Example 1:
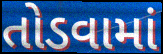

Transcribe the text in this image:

તોડવામાં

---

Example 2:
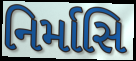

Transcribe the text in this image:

નિર્માસિ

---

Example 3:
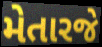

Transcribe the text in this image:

મેતારજે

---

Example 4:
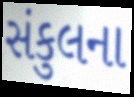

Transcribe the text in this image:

સંકુલના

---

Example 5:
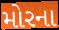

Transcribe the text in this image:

મોરના